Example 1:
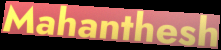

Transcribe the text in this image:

Mahanthesh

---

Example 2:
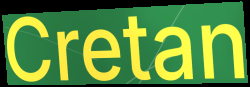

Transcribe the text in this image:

Cretan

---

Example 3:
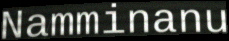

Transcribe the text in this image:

Namminanu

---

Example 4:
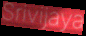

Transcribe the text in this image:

Srivijaya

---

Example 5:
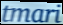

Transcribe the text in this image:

tmari